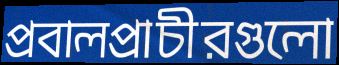
প্রবালপ্রাচীরগুলো